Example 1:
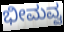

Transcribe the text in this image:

ಭೀಮವ್ವ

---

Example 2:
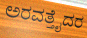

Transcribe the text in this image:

ಅರವತ್ತೈದರ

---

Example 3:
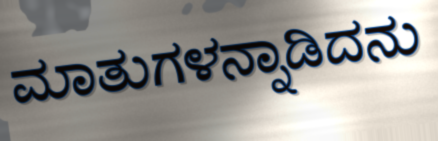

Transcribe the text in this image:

ಮಾತುಗಳನ್ನಾಡಿದನು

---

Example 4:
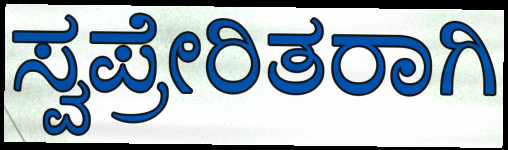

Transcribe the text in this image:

ಸ್ವಪ್ರೇರಿತರಾಗಿ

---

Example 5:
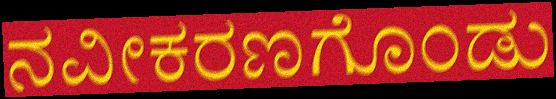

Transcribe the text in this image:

ನವೀಕರಣಗೊಂಡು